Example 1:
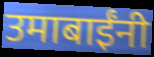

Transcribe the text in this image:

उमाबाईंनी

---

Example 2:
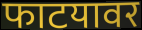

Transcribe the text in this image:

फाटयावर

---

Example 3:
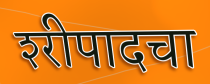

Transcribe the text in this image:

श्रीपादचा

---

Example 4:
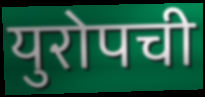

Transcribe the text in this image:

युरोपची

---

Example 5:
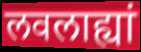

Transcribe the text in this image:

लवलाह्यां